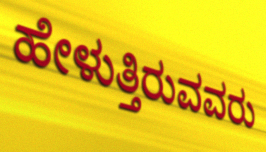
ಹೇಳುತ್ತಿರುವವರು